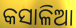
କସାଳିଆ